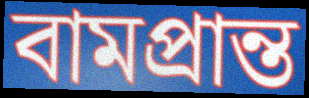
বামপ্রান্ত